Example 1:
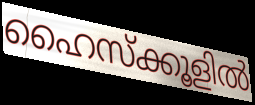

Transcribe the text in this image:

ഹൈസ്ക്കൂളിൽ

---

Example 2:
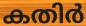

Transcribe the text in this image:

കതിർ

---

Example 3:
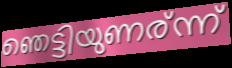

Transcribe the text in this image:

ഞെട്ടിയുണര്ന്ന്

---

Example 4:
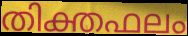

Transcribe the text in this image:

തിക്തഫലം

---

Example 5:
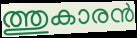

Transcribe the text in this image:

ത്തുകാരൻ